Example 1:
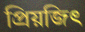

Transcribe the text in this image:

প্রিয়জিৎ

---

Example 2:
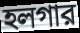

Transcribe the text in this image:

হলগার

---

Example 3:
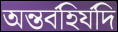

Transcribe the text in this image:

অন্তর্বহির্যদি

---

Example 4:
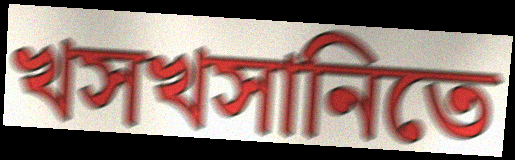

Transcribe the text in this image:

খসখসানিতে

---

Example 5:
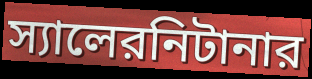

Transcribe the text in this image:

স্যালেরনিটানার